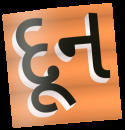
દૂન